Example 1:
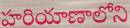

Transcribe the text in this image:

హరియాణాలోని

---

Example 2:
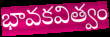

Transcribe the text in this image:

భావకవిత్వం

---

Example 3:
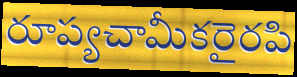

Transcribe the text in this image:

రూప్యచామీకరైరపి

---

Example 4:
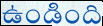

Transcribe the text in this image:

ఉండింది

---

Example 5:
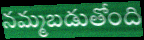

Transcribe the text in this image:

నమ్మబడుతోంది